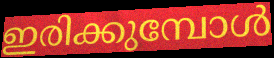
ഇരിക്കുമ്പോൾ